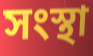
সংস্থা